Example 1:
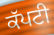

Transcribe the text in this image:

ਕੱਪਟੀ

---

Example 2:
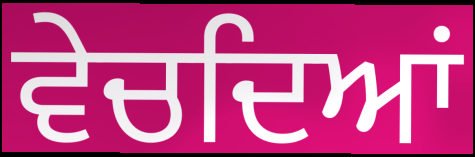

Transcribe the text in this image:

ਵੇਚਦਿਆਂ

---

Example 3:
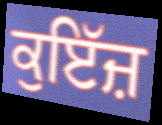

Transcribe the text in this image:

ਕੁਇੱਜ਼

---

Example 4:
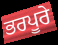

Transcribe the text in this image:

ਭਰਪੂਰੇ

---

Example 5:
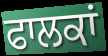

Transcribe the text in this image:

ਫਾਲਕਾਂ